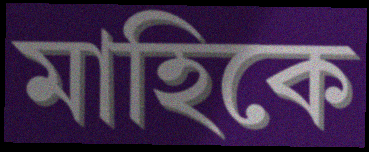
মাহিকে